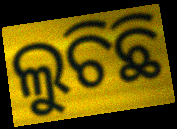
ଲୁଚିଛି